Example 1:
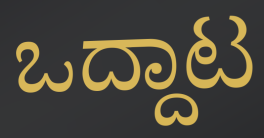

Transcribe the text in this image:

ಒದ್ದಾಟ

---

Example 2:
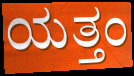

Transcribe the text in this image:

ಯತ್ತಂ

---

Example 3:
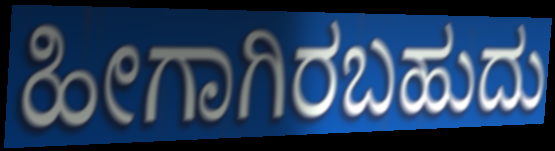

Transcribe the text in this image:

ಹೀಗಾಗಿರಬಹುದು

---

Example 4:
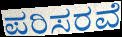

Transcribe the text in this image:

ಪರಿಸರವೆ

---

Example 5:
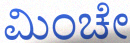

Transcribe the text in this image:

ಮಿಂಚೇ